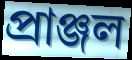
প্ৰাঞ্জল